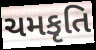
ચમકૃતિ